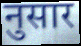
नुसार